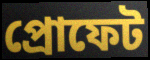
প্রোফেট